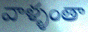
వాళ్ళంతా